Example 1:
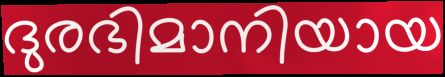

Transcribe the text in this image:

ദുരഭിമാനിയായ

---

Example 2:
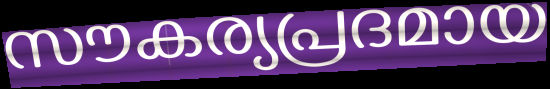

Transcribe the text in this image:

സൗകര്യപ്രദമായ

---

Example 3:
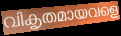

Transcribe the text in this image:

വികൃതമായവളെ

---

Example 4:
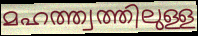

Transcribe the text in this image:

മഹത്ത്വത്തിലുള്ള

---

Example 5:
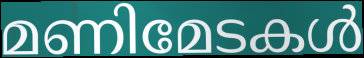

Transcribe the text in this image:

മണിമേടകൾ